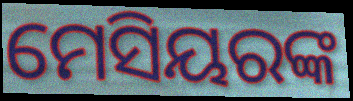
ମେସିୟରଙ୍କ